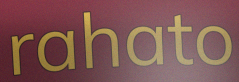
rahato